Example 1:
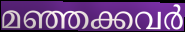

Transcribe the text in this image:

മഞ്ഞക്കവർ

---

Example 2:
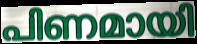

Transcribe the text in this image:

പിണമായി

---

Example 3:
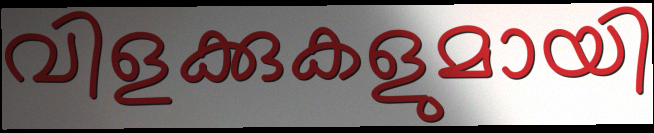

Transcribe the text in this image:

വിളക്കുകളുമായി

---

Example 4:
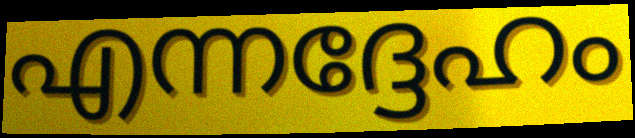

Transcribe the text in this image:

എന്നദ്ദേഹം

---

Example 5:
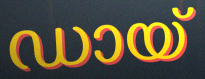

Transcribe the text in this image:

ഡായ്